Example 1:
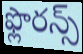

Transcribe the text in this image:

ఫ్లొరన్స్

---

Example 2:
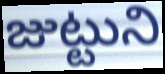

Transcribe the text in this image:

జుట్టుని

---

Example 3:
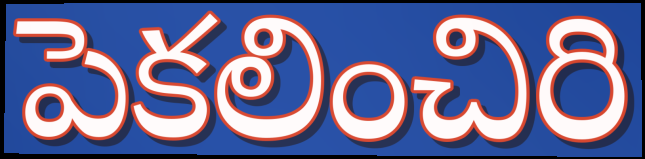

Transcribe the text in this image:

పెకలించిరి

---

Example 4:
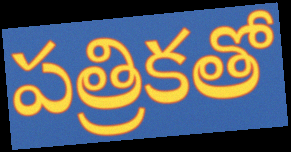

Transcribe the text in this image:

పత్రికతో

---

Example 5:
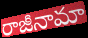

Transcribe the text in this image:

రాజీనామా